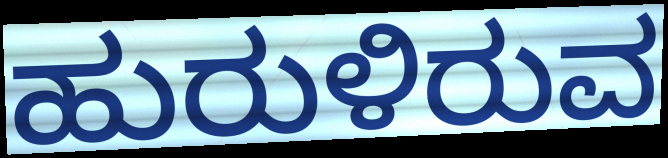
ಹುರುಳಿರುವ